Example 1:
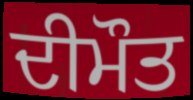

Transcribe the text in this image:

ਦੀਮੌਤ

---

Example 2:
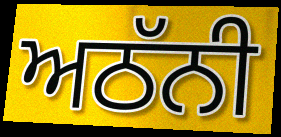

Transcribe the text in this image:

ਅਠੱਨੀ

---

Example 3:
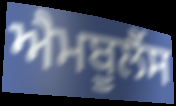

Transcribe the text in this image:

ਐਮਬੂਲੈਂਸ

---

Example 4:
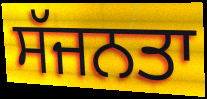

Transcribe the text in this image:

ਸੱਜਨਤਾ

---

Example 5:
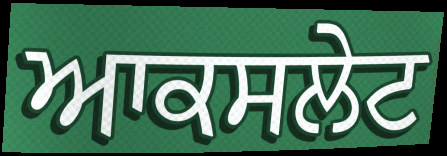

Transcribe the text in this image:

ਆਕਸਲੇਟ